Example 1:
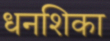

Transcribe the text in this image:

धनशिका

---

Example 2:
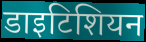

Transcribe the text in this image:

डाइटिशियन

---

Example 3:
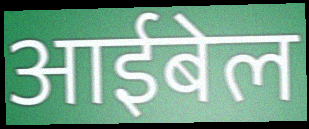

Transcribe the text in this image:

आईबेल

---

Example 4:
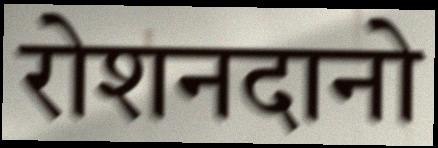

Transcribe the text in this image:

रोशनदानो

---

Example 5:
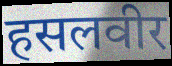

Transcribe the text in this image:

हसलवीर